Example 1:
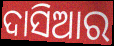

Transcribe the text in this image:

ଦାସିଆର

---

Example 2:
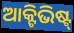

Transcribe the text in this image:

ଆକ୍ଟିଭିଷ୍ଟ୍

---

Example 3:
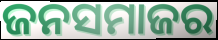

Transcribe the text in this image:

ଜନସମାଜର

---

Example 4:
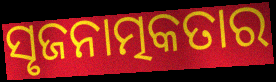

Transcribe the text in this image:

ସୃଜନାତ୍ମକତାର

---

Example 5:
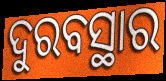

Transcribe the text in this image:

ଦୁରବସ୍ଥାର